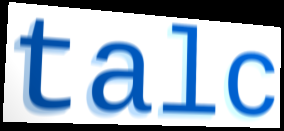
talc